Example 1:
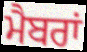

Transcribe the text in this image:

ਮੈਬਰਾਂ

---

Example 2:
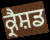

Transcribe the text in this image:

ਕ੍ਰੈਸ਼ਡ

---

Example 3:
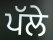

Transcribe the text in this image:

ਪੱਲੇ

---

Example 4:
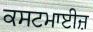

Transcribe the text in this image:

ਕਸਟਮਾਈਜ਼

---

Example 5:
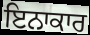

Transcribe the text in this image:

ਇਨਾਕਾਰ